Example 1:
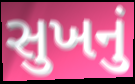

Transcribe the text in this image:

સુખનું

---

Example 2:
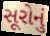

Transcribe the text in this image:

સૂરોનું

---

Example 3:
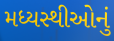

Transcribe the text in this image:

મધ્યસ્થીઓનું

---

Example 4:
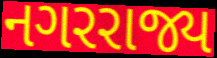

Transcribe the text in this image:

નગરરાજ્ય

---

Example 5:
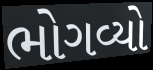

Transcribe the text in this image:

ભોગવ્યો